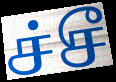
ச்சீ